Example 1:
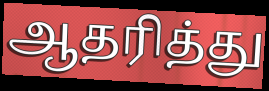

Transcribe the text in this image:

ஆதரித்து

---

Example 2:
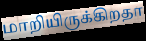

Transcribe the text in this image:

மாறியிருக்கிறதா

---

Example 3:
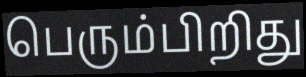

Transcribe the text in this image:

பெரும்பிறிது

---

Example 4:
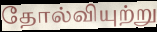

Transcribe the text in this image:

தோல்வியுற்று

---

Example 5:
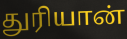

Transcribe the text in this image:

துரியான்